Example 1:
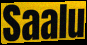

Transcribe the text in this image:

Saalu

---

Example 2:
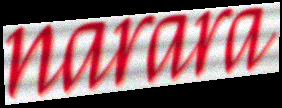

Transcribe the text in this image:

narara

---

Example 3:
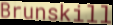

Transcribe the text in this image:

Brunskill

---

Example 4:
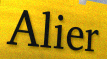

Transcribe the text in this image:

Alier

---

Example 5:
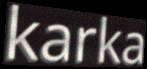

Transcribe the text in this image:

karka